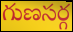
గుణసర్గ